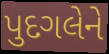
પુદગલેને